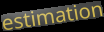
estimation